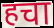
हचा